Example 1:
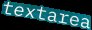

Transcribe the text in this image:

textarea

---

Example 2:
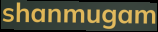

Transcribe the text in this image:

shanmugam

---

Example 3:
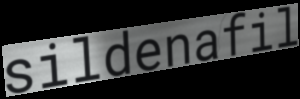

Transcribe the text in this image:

sildenafil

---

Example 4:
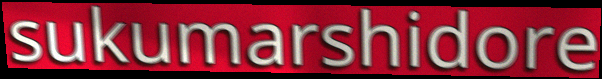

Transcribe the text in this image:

sukumarshidore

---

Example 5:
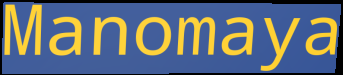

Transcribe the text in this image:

Manomaya